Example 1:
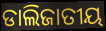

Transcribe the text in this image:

ଡାଲିଜାତୀୟ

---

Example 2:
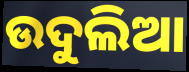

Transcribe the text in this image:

ଉଦୁଲିଆ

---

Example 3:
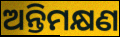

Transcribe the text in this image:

ଅନ୍ତିମକ୍ଷଣ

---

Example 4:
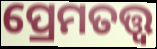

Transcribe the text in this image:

ପ୍ରେମତତ୍ତ୍ୱ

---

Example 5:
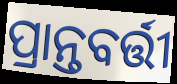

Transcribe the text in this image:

ପ୍ରାନ୍ତବର୍ତ୍ତୀ